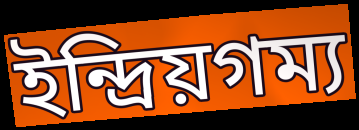
ইন্দ্রিয়গম্য